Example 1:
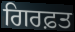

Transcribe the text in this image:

ਗਿਰਫ਼ਤ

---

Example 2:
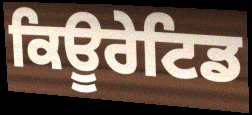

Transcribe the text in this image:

ਕਿਊਰੇਟਿਡ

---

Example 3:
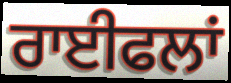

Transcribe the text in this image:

ਰਾਈਫਲਾਂ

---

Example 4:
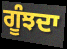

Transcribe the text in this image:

ਗੂੰਝਦਾ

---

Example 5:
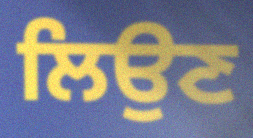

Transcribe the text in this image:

ਲਿਉਣ